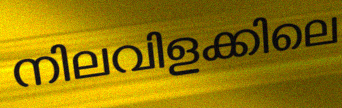
നിലവിളക്കിലെ